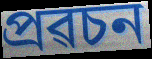
প্ৰৱচন